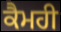
ਕੈਮਹੀ